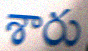
శారు